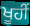
ਖੂਹੀਂ